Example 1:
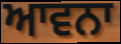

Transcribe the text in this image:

ਆਵਨਾ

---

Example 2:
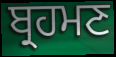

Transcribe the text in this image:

ਬ੍ਰਹਮਣ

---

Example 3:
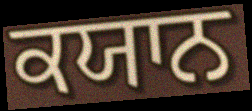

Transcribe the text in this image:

ਕਯਾਨ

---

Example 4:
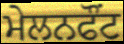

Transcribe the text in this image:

ਮੇਲਨਫੌਂਟ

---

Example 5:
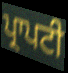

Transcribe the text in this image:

ਪ੍ਰਾਪਟੀ